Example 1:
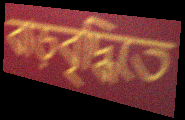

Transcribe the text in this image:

বাড়বৃদ্ধিতে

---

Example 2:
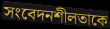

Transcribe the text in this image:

সংবেদনশীলতাকে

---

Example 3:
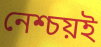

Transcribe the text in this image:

নেশ্চয়ই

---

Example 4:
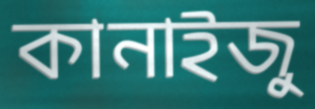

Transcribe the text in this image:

কানাইজু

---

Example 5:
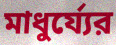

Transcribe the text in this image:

মাধুর্য্যের